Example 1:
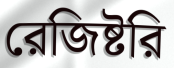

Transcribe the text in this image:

রেজিষ্টরি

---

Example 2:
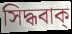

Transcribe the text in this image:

সিদ্ধবাক্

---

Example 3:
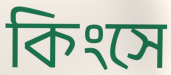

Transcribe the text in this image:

কিংসে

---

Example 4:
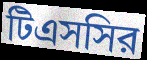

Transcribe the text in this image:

টিএসসির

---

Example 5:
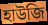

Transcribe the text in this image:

হাউজি